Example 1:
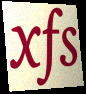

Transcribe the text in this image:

xfs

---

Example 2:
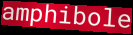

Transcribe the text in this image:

amphibole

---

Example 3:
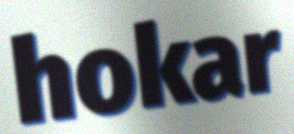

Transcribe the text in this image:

hokar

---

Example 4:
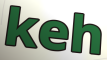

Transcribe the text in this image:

keh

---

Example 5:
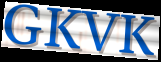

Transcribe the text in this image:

GKVK